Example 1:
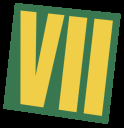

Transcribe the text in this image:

Vll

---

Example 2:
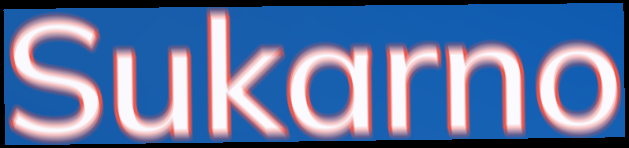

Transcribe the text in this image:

Sukarno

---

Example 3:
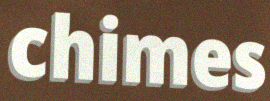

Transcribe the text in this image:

chimes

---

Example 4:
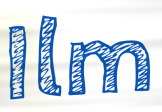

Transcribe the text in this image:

Ilm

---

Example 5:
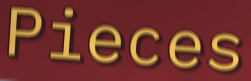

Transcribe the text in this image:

Pieces